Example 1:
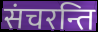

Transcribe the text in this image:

संचरन्ति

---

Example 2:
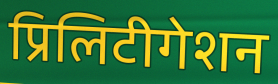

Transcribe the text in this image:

प्रिलिटीगेशन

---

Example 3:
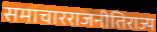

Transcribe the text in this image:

समाचारराजनीतिराज्य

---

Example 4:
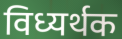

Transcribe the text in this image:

विध्यर्थक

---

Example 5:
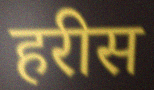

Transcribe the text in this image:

हरीस